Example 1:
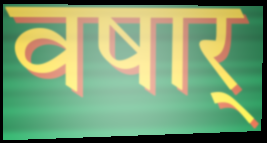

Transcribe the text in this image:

वषार्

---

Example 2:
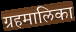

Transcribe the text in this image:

ग्रहमालिका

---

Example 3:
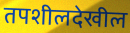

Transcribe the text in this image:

तपशीलदेखील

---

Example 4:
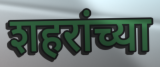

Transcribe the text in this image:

शहरांच्या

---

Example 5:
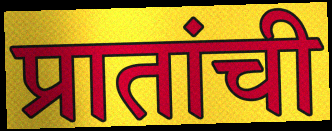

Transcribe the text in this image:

प्रातांची